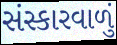
સંસ્કારવાળું